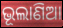
ଭୂଲାଣିଆ